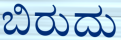
ಬಿರುದು